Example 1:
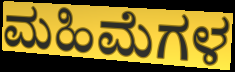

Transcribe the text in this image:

ಮಹಿಮೆಗಳ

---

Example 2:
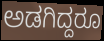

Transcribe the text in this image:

ಅಡಗಿದ್ದರೂ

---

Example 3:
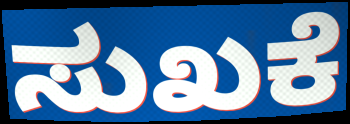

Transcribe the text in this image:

ಸುಖಕೆ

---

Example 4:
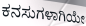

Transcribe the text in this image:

ಕನಸುಗಳಾಗಿಯೇ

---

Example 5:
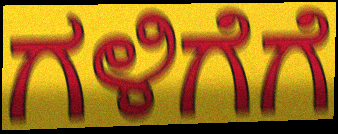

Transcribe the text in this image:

ಗಳಿಗೆಗೆ